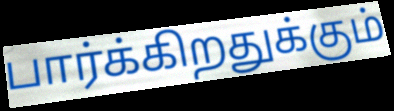
பார்க்கிறதுக்கும்